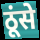
ठूंसे